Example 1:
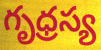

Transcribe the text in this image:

గృధ్రస్య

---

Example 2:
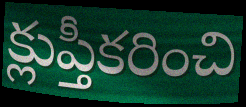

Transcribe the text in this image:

క్లుప్తీకరించి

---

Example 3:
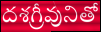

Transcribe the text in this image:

దశగ్రీవునితో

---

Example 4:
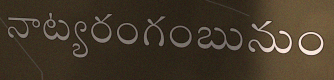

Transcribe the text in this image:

నాట్యరంగంబునుం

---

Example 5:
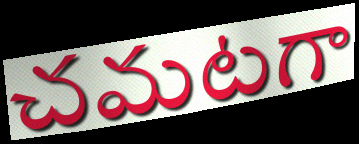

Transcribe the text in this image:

చమటగా